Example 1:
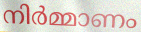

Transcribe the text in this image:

നിർമ്മാണം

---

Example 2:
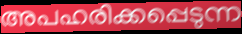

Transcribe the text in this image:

അപഹരിക്കപ്പെടുന്ന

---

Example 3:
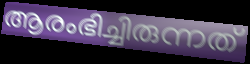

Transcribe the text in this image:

ആരംഭിച്ചിരുന്നത്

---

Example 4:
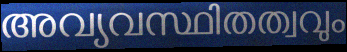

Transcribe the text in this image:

അവ്യവസ്ഥിതത്വവും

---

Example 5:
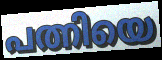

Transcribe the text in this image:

പത്നിയെ